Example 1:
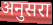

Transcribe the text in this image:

अनुसरा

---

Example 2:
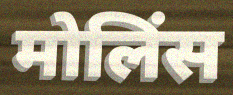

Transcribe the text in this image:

मोलिंस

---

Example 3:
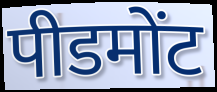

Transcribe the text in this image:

पीडमोंट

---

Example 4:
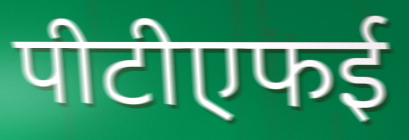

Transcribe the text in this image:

पीटीएफई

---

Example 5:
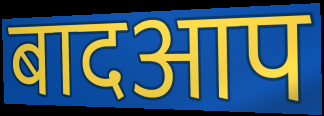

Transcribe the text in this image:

बादआप